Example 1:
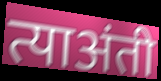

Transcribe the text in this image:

त्याअंती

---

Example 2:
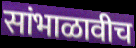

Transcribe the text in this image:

सांभाळावीच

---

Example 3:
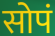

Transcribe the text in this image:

सोपं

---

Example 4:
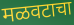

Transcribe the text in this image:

मळवटाचा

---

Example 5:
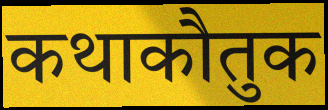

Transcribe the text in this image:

कथाकौतुक